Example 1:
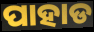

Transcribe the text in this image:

ପାହାଡ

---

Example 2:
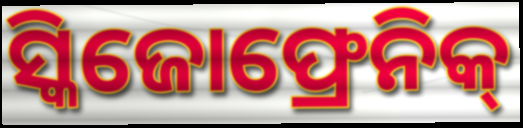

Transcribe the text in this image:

ସ୍କିଜୋଫ୍ରେନିକ୍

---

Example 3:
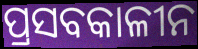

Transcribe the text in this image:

ପ୍ରସବକାଳୀନ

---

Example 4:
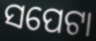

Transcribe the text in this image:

ସପେଟା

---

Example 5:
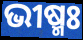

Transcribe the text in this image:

ଭୀଷ୍ମଃ